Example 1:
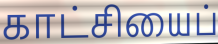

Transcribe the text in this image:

காட்சியைப்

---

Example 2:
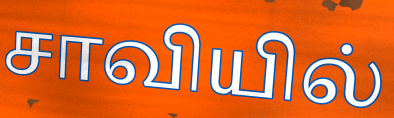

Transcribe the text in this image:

சாவியில்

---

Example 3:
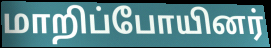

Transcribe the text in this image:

மாறிப்போயினர்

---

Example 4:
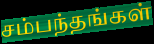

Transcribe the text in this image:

சம்பந்தங்கள்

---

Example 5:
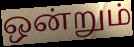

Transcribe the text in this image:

ஒன்றும்